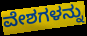
ವೇಶಗಳನ್ನು